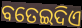
ବତେଇଦିଏ